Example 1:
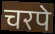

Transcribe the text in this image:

चरपे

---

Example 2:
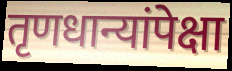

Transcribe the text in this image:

तृणधान्यांपेक्षा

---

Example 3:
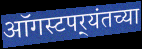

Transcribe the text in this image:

ऑगस्टपर्यंतच्या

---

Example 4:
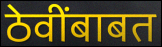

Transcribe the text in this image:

ठेवींबाबत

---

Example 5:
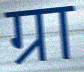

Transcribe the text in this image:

ग्रा